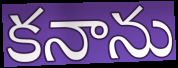
కనాను